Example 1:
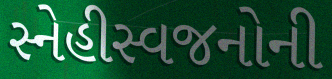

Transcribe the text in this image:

સ્નેહીસ્વજનોની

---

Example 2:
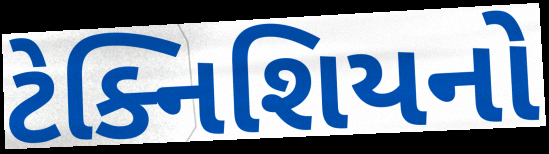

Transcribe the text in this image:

ટેક્નિશિયનો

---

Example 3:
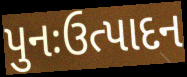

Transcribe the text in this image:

પુનઃઉત્પાદન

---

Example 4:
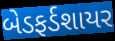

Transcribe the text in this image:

બેડફર્ડશાયર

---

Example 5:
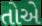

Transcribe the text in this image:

તોએ